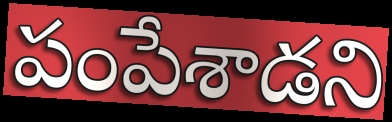
పంపేశాడని